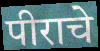
पीराचे